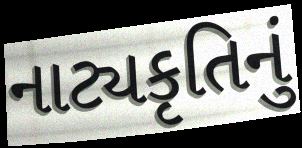
નાટ્યકૃતિનું